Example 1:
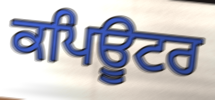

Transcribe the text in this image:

ਕਪਿਊਟਰ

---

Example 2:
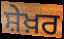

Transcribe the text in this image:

ਸ਼ੇਖ਼ਰ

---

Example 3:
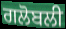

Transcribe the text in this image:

ਗਲੋਬਲੀ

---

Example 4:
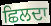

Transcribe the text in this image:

ਛਿਲਦਾ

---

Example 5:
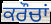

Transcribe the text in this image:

ਕਰੌਚਾਂ